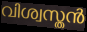
വിശ്വസ്തൻ